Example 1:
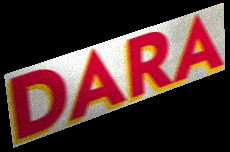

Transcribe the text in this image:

DARA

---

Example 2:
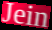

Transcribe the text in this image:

Jein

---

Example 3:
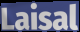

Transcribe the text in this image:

Laisal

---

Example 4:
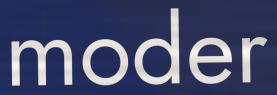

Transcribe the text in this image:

moder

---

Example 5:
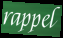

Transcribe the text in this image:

rappel